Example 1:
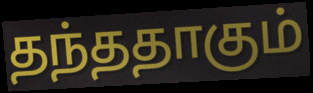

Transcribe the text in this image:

தந்ததாகும்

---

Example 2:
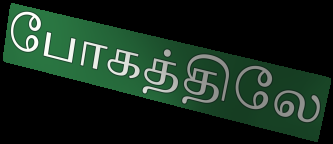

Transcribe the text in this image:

போகத்திலே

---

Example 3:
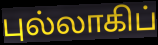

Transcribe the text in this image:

புல்லாகிப்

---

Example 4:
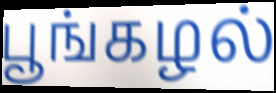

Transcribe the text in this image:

பூங்கழல்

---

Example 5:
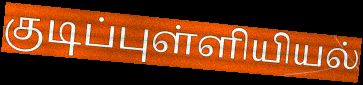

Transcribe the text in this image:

குடிப்புள்ளியியல்